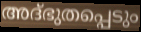
അദ്ഭുതപ്പെടും